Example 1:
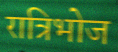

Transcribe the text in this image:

रात्रिभोज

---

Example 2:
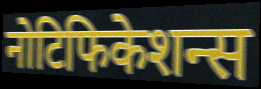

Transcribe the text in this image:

नोटिफिकेशन्स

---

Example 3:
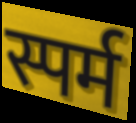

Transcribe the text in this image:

स्पर्म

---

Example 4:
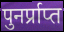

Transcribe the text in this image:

पुनर्प्राप्त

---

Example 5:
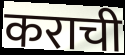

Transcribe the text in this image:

कराची